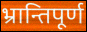
भ्रान्तिपूर्ण